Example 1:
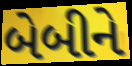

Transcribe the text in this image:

બેબીને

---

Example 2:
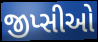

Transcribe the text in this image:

જીપ્સીઓ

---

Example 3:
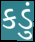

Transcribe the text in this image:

કડું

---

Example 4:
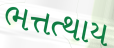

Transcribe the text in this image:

ભત્તત્થાય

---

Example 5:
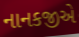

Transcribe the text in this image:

નાનકજીએ